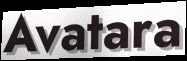
Avatara